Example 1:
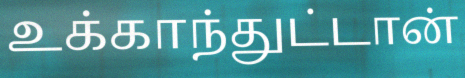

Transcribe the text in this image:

உக்காந்துட்டான்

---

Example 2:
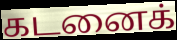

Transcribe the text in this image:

கடனைக்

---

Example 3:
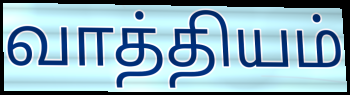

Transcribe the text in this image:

வாத்தியம்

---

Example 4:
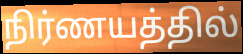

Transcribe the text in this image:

நிர்ணயத்தில்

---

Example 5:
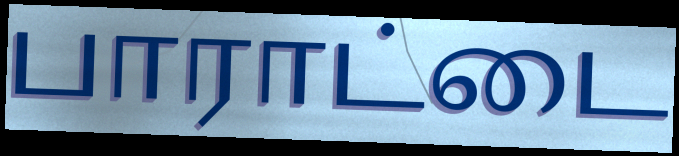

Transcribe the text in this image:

பாராட்டை